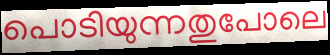
പൊടിയുന്നതുപോലെ